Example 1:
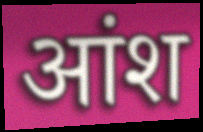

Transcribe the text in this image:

आंश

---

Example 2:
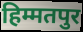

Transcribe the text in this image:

हिम्मतपुर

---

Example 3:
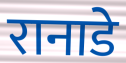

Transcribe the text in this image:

रानाडे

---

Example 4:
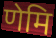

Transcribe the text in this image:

णेमि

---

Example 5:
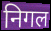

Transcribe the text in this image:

निगल